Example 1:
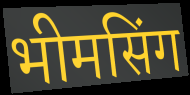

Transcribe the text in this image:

भीमसिंग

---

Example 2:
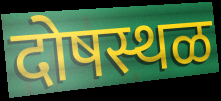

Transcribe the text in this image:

दोषस्थळ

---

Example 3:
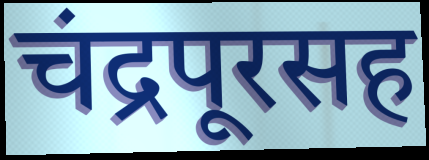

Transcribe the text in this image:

चंद्रपूरसह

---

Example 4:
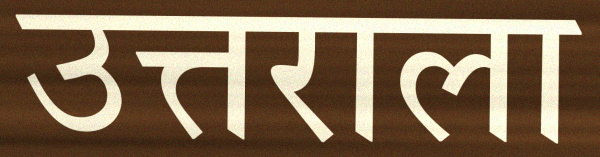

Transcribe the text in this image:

उत्तराला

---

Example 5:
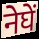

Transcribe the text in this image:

नेघें